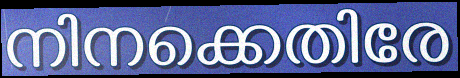
നിനക്കെതിരേ